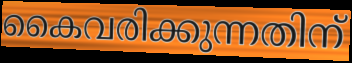
കൈവരിക്കുന്നതിന്